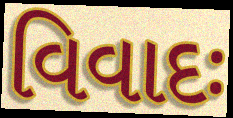
વિવાદઃ